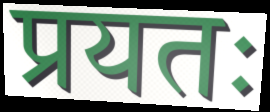
प्रयतः